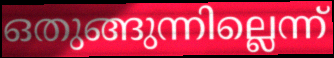
ഒതുങ്ങുന്നില്ലെന്ന്